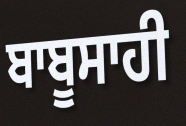
ਬਾਬੂਸਾਹੀ